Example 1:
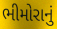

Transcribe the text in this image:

ભીમોરાનું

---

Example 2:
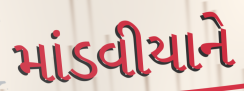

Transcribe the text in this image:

માંડવીયાને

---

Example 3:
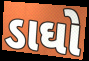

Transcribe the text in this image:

ડાઘો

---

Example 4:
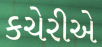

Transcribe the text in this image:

કચેરીએ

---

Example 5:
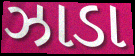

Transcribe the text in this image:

ઝાડા